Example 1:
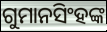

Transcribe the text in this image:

ଗୁମାନସିଂହଙ୍କ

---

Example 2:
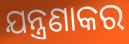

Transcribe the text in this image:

ଯନ୍ତ୍ରଣାକର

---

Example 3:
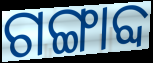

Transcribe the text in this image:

ଗଙ୍ଗାବ୍ଦ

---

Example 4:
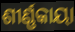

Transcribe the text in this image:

ଶୀର୍ଣ୍ଣକାୟା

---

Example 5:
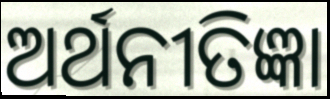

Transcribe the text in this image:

ଅର୍ଥନୀତିଜ୍ଞା